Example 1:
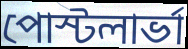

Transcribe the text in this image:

পোস্টলার্ভা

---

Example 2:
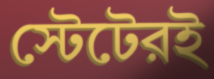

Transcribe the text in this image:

স্টেটেরই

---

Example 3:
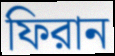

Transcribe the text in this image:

ফিরান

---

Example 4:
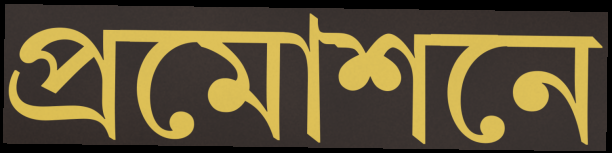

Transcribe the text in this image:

প্রমোশনে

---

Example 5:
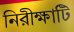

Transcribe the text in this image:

নিরীক্ষাটি